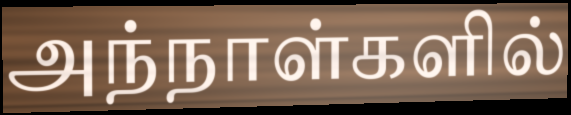
அந்நாள்களில்